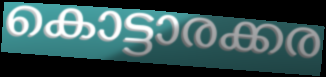
കൊട്ടാരക്കര